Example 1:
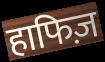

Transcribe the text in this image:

हाफिज़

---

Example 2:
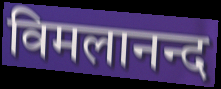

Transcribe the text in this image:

विमलानन्द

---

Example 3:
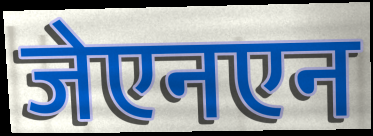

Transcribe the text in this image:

जेएनएन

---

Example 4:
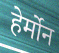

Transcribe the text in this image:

हेर्मोन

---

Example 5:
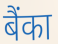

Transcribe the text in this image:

बैंका